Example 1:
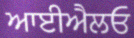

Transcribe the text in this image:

ਆਈਐਲਓ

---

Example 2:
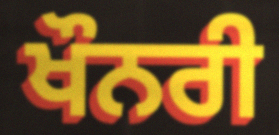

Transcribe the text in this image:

ਖੌਨਰੀ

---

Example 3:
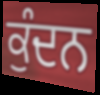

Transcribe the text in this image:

ਕੁੰਦਨ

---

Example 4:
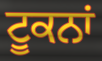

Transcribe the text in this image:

ਟੂਕਨਾਂ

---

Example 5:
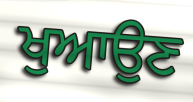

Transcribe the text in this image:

ਖੁਆਉਣ